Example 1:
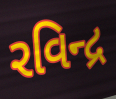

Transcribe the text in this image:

રવિન્દ્ર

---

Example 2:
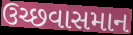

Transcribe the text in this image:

ઉચ્છવાસમાન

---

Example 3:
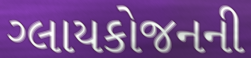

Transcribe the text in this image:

ગ્લાયકોજનની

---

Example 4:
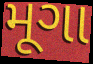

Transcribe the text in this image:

મૂગા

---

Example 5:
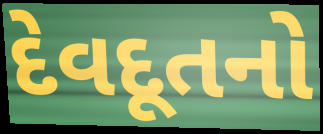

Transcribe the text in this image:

દેવદૂતનો